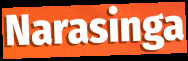
Narasinga